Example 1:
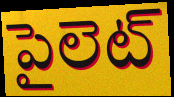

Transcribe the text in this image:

పైలెట్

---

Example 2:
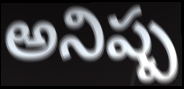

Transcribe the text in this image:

అనిష్ప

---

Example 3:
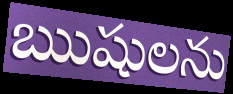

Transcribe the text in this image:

ఋషులను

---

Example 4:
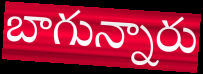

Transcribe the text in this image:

బాగున్నారు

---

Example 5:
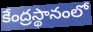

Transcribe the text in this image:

కేంద్రస్థానంలో